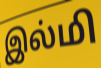
இல்மி